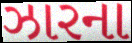
ઝારના